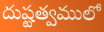
దుష్టత్వములో